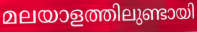
മലയാളത്തിലുണ്ടായി